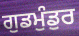
ਗੁਡਮੁੰਡੁਰ